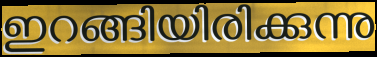
ഇറങ്ങിയിരിക്കുന്നു